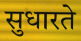
सुधारते